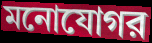
মনোযোগর